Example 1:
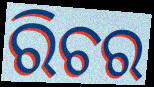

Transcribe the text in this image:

ରିଚର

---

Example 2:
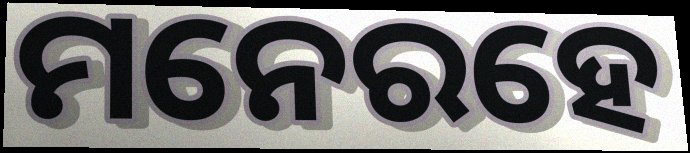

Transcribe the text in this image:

ମନେରହେ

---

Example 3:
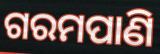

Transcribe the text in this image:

ଗରମପାଣି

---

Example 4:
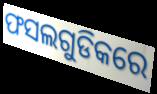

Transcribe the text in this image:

ଫସଲଗୁଡିକରେ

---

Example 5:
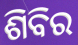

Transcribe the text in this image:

ଶିବିର